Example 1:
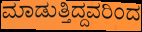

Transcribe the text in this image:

ಮಾಡುತ್ತಿದ್ದವರಿಂದ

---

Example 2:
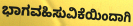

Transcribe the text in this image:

ಭಾಗವಹಿಸುವಿಕೆಯಿಂದಾಗಿ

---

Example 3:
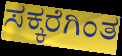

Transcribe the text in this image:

ಸಕ್ಕರೆಗಿಂತ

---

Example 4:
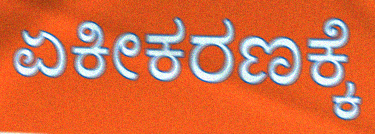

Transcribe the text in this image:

ಏಕೀಕರಣಕ್ಕೆ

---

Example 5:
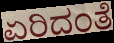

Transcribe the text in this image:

ಏರಿದಂತೆ